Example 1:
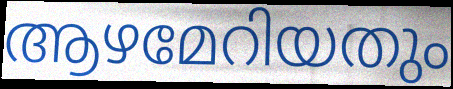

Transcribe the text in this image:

ആഴമേറിയതും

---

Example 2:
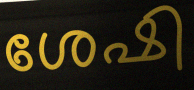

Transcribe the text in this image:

ശേഷി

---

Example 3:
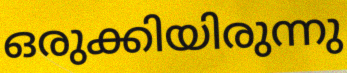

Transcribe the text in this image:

ഒരുക്കിയിരുന്നു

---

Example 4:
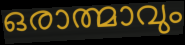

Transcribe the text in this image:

ഒരാത്മാവും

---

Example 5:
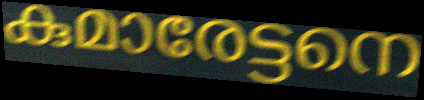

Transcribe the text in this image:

കുമാരേട്ടനെ